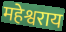
महेश्वराय